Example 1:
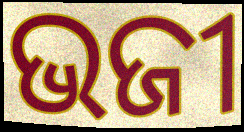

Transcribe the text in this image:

ଭଜୀ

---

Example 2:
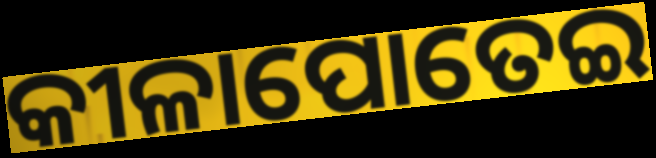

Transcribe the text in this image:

କୀଳାପୋତେଇ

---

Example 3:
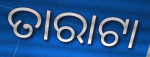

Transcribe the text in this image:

ତାରାଟା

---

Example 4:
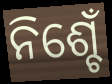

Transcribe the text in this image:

ନିଶ୍ଚେଁ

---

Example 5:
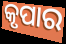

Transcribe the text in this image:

କୃପାର